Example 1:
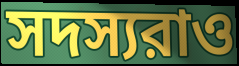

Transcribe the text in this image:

সদস্যরাও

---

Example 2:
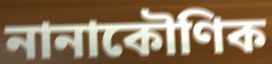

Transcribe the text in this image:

নানাকৌণিক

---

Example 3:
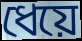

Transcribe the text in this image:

ধেয়ে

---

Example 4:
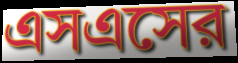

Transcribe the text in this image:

এসএসের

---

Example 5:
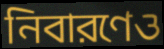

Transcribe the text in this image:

নিবারণেও